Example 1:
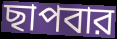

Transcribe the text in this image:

ছাপবার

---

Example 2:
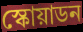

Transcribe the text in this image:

স্কোয়াডন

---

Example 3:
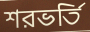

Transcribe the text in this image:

শরভর্তি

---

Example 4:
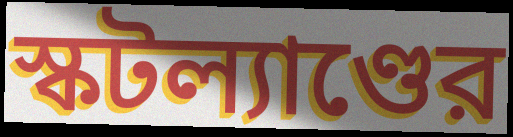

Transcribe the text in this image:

স্কটল্যাণ্ডের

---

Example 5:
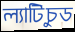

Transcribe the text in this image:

ল্যাটিচুড